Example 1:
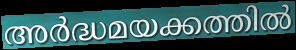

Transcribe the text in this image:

അർദ്ധമയക്കത്തിൽ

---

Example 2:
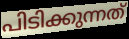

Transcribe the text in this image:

പിടിക്കുന്നത്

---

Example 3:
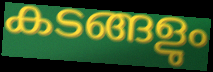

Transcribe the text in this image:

കടങ്ങളും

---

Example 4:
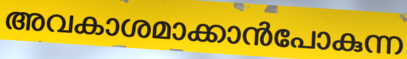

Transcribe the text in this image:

അവകാശമാക്കാൻപോകുന്ന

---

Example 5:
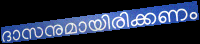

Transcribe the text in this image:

ദാസനുമായിരിക്കണം